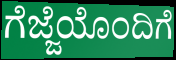
ಗೆಜ್ಜೆಯೊಂದಿಗೆ